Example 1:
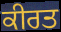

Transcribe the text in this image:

ਕੀਰਤ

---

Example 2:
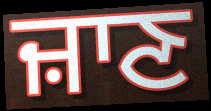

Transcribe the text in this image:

ਜ਼ਾਣ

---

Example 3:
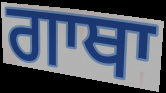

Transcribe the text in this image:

ਗਾਥਾ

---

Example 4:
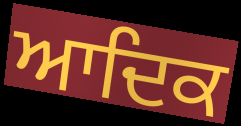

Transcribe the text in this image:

ਆਦਿਕ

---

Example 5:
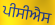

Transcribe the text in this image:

ਪੀਸੀਐਸ